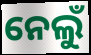
ନେଲୁଁ